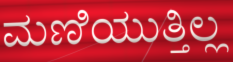
ಮಣಿಯುತ್ತಿಲ್ಲ